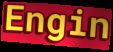
Engin